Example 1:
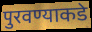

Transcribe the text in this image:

पुरवण्याकडे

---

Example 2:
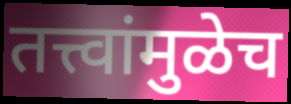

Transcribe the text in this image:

तत्त्वांमुळेच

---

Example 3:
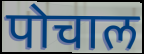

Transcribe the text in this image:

पोचाल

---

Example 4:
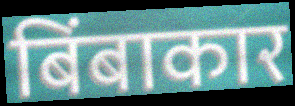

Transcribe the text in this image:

बिंबाकार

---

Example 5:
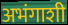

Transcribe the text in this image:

अभंगाशी